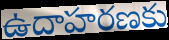
ఉదాహరణకు